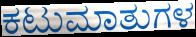
ಕಟುಮಾತುಗಳ